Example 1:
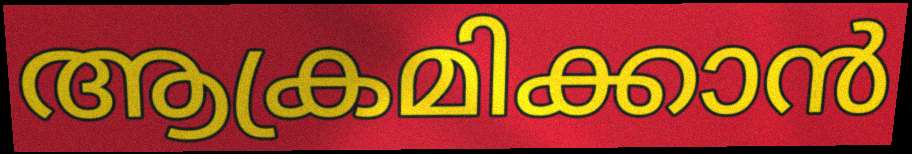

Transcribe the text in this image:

ആക്രമിക്കാൻ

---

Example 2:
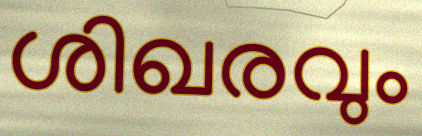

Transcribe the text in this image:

ശിഖരവും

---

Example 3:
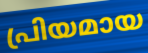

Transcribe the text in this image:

പ്രിയമായ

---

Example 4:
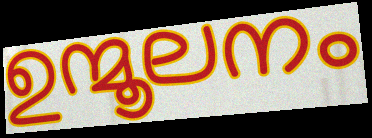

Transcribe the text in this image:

ഉന്മൂലനം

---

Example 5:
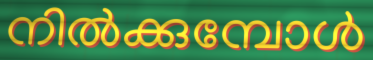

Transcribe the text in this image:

നിൽക്കുമ്പോൾ